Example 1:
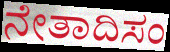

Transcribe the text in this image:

ನೇತಾದಿಸಂ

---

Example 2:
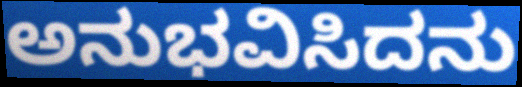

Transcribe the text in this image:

ಅನುಭವಿಸಿದನು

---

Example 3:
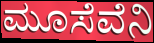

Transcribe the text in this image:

ಮೂಸೆವೆನಿ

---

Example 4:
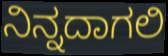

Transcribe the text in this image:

ನಿನ್ನದಾಗಲಿ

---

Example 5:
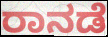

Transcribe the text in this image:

ರಾನಡೆ